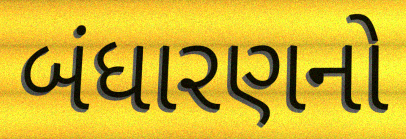
બંધારણનો